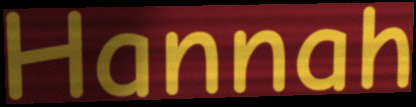
Hannah